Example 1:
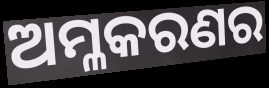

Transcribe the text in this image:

ଅମ୍ଳକରଣର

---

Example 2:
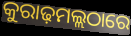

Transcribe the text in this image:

କୁରାଢ଼ମଲ୍ଲଠାରେ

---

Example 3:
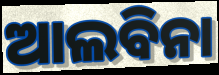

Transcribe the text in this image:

ଆଲବିନା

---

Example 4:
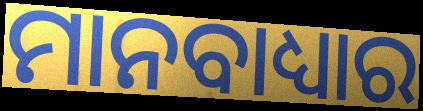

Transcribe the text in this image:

ମାନବାଧ୍ୟାର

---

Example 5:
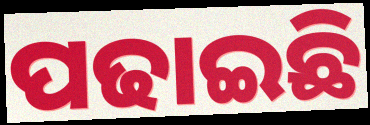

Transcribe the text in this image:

ପଢାଇଛି